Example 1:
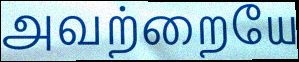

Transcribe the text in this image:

அவற்றையே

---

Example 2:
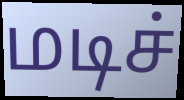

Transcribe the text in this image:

மடிச்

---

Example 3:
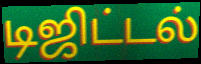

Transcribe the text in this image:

டிஜிட்டல்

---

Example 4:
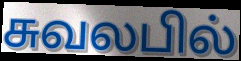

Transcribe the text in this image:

சுவலபில்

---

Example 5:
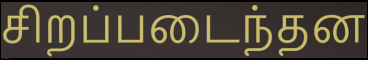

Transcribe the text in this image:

சிறப்படைந்தன